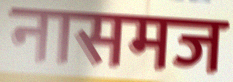
नासमज